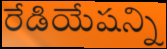
రేడియేషన్ని